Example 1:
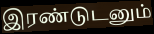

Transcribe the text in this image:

இரண்டுடனும்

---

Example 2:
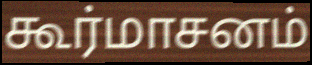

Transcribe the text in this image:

கூர்மாசனம்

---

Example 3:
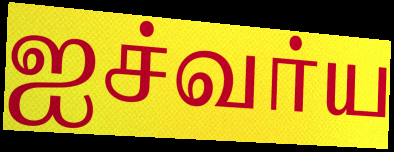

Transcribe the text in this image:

ஐச்வர்ய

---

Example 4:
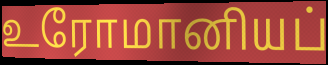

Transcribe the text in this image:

உரோமானியப்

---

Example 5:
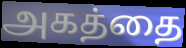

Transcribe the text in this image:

அகத்தை